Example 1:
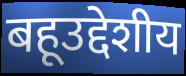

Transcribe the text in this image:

बहूउद्देशीय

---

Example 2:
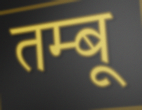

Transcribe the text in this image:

तम्बू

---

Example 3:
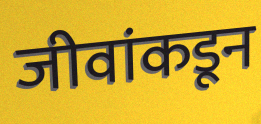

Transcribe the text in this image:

जीवांकडून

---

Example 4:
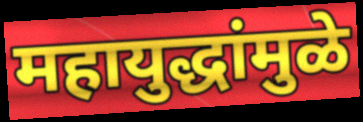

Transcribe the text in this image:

महायुद्धांमुळे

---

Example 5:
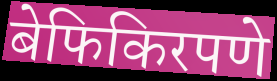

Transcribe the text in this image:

बेफिकिरपणे